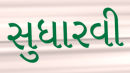
સુધારવી